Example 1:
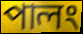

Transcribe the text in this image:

পালং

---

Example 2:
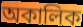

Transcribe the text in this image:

অকালিক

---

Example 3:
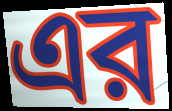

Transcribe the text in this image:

এর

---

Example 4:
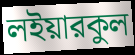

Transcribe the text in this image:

লইয়ারকুল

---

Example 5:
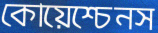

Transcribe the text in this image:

কোয়েশ্চেনস